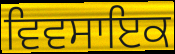
ਵਿਵਸਾਇਕ